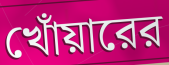
খোঁয়ারের